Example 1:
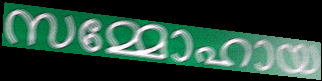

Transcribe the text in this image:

സമ്മോഹായ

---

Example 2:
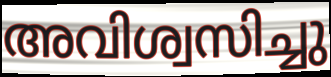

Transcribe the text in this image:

അവിശ്വസിച്ചു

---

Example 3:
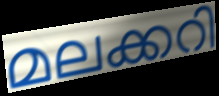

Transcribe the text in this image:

മലക്കറി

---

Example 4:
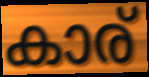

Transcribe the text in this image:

കാര്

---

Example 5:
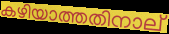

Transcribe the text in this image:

കഴിയാത്തതിനാല്